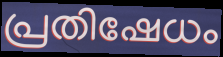
പ്രതിഷേധം